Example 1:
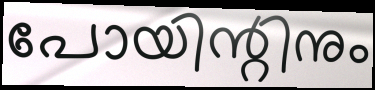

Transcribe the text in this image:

പോയിന്റിനും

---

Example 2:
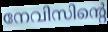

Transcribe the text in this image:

നേവിസിന്റെ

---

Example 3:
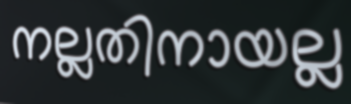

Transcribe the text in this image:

നല്ലതിനായല്ല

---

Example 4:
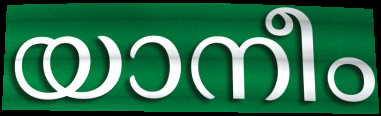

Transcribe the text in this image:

യാനീം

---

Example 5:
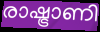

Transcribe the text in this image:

രാഷ്ട്രാണി